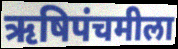
ऋषिपंचमीला